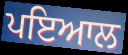
ਪਇਆਲ